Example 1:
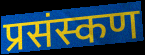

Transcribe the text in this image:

प्रसंस्कण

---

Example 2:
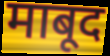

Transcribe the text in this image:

माबूद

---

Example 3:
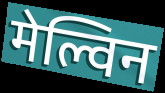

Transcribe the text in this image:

मेल्विन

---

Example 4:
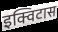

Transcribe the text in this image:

इक्विटास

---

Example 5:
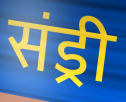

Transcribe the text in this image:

संड्री